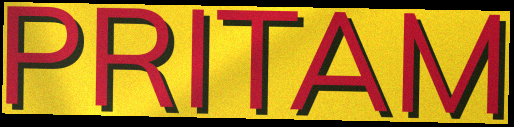
PRITAM